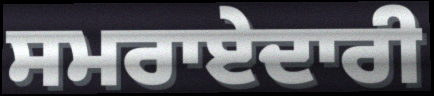
ਸਮਰਾਏਦਾਰੀ